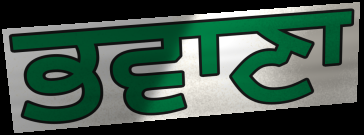
ਭਵਾਣਾ